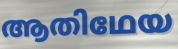
ആതിഥേയ